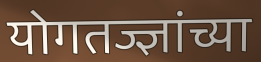
योगतज्ज्ञांच्या